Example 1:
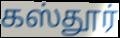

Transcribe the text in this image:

கஸ்தூர்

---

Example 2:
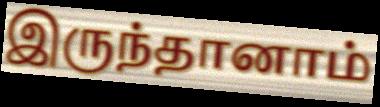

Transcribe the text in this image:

இருந்தானாம்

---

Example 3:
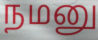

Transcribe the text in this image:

நமனு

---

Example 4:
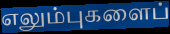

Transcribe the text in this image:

எலும்புகளைப்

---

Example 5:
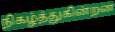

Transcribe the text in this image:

நிகழ்த்துகின்றன